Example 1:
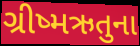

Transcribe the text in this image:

ગ્રીષ્મઋતુના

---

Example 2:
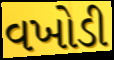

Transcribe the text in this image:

વખોડી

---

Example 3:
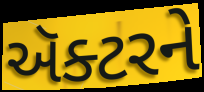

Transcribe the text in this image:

ઍક્ટરને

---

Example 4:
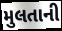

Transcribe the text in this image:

મુલતાની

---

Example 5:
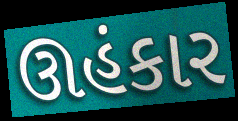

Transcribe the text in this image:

ઊહંકાર